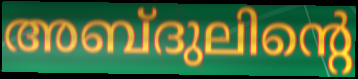
അബ്ദുലിന്റെ